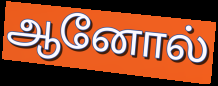
ஆனோல்